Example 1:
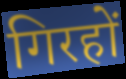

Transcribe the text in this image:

गिरहों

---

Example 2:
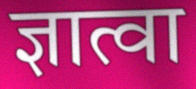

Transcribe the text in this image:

ज्ञात्वा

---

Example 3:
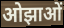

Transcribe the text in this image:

ओझाओं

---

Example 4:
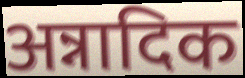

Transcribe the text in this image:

अन्नादिक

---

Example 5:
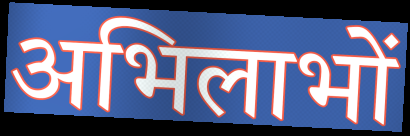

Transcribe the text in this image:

अभिलाभों